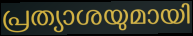
പ്രത്യാശയുമായി